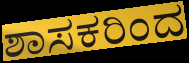
ಶಾಸಕರಿಂದ